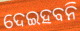
ଦେଇହବନି